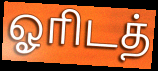
ஓரிடத்